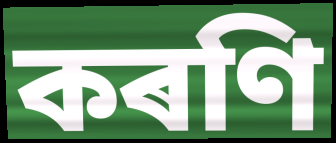
কৰণি